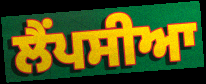
ਲੈਂਪਸੀਆ